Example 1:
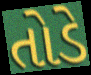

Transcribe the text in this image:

તોડે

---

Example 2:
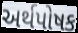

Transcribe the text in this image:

અર્થપોષક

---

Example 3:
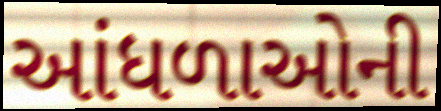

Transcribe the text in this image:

આંધળાઓની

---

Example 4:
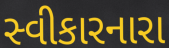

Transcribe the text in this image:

સ્વીકારનારા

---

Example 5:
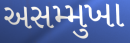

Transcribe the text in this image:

અસમ્મુખા